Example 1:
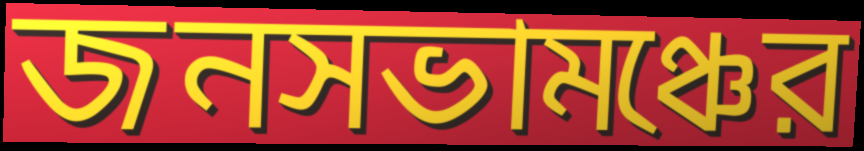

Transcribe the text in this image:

জনসভামঞ্চের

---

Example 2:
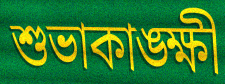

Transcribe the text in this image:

শুভাকাঙ্ক্ষী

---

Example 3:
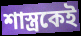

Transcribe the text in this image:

শাস্ত্রকেই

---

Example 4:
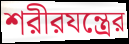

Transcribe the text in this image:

শরীরযন্ত্রের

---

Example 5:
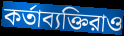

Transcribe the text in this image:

কর্তাব্যক্তিরাও